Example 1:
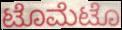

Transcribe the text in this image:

ಟೊಮೆಟೊ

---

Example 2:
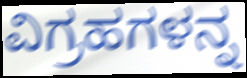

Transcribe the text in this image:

ವಿಗ್ರಹಗಳನ್ನ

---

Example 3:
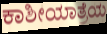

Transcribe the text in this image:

ಕಾಶೀಯಾತ್ರೆಯ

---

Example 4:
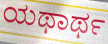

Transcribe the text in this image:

ಯಥಾರ್ಥ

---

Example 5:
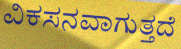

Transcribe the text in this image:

ವಿಕಸನವಾಗುತ್ತದೆ